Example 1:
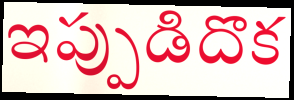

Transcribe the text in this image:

ఇప్పుడిదొక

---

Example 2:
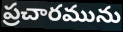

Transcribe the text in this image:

ప్రచారమును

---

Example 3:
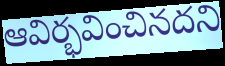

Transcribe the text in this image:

ఆవిర్భవించినదని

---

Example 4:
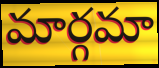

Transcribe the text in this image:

మార్గమా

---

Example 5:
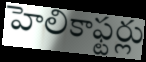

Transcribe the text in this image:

హెలికాఫ్టర్లు